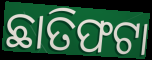
ଛାତିଫଟା